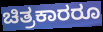
ಚಿತ್ರಕಾರರೂ